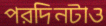
পরদিনটাও